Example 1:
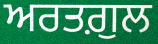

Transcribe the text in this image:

ਅਰਤਗ਼ੁਲ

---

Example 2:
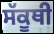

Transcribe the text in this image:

ਸੱਕੂਥੀ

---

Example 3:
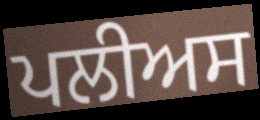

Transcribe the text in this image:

ਪਲੀਅਸ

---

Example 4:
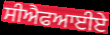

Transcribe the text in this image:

ਸੀਐਫਆਈਏ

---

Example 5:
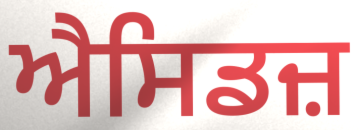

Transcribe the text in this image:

ਐਸਿਡਜ਼